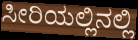
ಸೀರಿಯಲ್ಲಿನಲ್ಲಿ